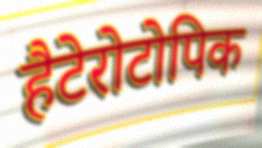
हैटेरोटोपिक